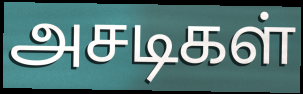
அசடிகள்